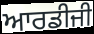
ਆਰਡੀਜੀ